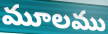
మూలము